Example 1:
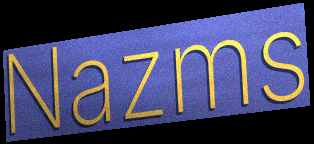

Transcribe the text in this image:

Nazms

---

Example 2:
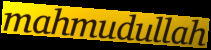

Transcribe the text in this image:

mahmudullah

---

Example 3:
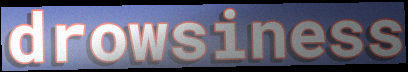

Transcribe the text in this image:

drowsiness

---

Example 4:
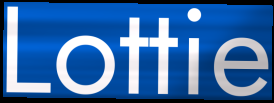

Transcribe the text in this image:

Lottie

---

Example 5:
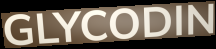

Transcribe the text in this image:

GLYCODIN